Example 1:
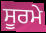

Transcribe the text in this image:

ਸੂਰਮੇ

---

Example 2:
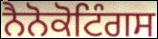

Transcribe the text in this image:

ਨੈਨੋਕੋਟਿੰਗਸ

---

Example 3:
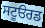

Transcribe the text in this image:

ਸਟੂੳਰਡ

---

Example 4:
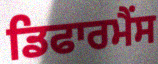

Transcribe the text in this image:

ਡਿਫਾਰਮੈਂਸ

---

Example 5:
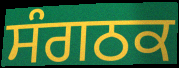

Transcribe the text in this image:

ਸੰਗਠਕ